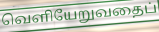
வெளியேறுவதைப்